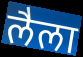
लैला